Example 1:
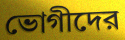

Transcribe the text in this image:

ভোগীদের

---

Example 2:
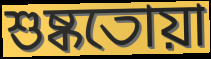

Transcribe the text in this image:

শুষ্কতোয়া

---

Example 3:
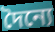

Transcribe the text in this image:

দৈন্যে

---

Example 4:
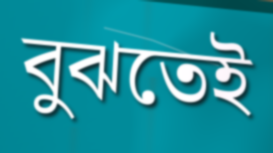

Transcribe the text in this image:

বুঝতেই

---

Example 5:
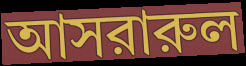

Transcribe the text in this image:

আসরারুল